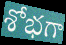
శోభగా